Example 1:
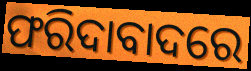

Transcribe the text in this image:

ଫରିଦାବାଦରେ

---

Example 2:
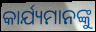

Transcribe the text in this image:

କାର୍ଯ୍ୟମାନଙ୍କୁ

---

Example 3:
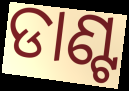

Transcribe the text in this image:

ଡାଣ୍ଟ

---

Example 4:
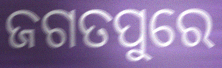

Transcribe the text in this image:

ଜଗତପୁରେ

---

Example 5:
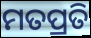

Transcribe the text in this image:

ମତପ୍ରତି